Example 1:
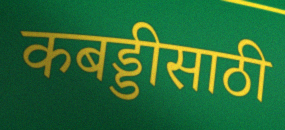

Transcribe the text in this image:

कबड्डीसाठी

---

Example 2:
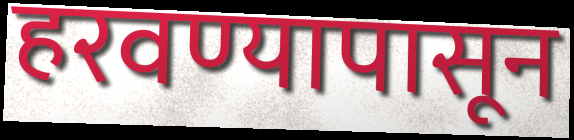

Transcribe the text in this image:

हरवण्यापासून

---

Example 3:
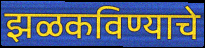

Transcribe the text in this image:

झळकविण्याचे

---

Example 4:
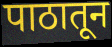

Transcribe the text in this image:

पाठातून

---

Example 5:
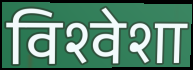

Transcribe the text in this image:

विश्वेशा